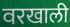
वरखाली